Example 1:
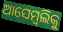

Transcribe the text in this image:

ଆସେମ୍ବଲିକୁ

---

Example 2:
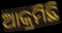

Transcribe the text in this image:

ଆକ୍ରମିଛି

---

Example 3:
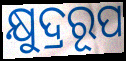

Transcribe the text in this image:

କ୍ଷୁଦ୍ରରୂପ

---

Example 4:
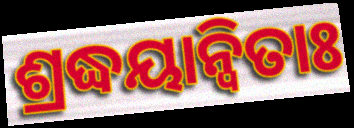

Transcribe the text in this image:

ଶ୍ରଦ୍ଧୟାନ୍ୱିତାଃ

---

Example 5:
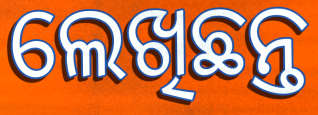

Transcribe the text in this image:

ଲେଖିଛନ୍ତ